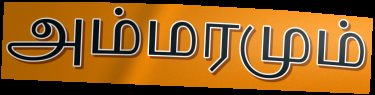
அம்மரமும்